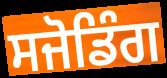
ਸਜੋਡਿੰਗ